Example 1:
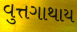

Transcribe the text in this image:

વુત્તગાથાય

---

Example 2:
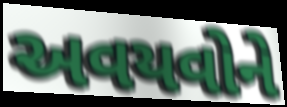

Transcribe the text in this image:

અવયવોને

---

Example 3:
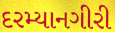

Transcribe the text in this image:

દરમ્યાનગીરી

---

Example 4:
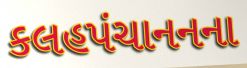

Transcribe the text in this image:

કલહપંચાનનના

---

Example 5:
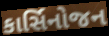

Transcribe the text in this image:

કાર્સિનોજન